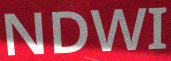
NDWI